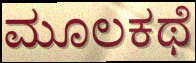
ಮೂಲಕಥೆ